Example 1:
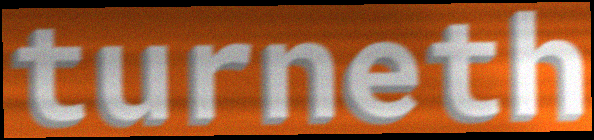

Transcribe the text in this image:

turneth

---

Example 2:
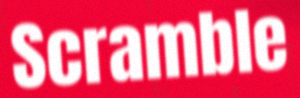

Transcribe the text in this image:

Scramble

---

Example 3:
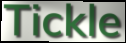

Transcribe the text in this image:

Tickle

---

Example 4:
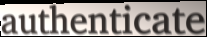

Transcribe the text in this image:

authenticate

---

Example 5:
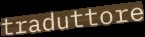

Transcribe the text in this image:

traduttore